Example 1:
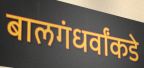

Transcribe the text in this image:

बालगंधर्वांकडे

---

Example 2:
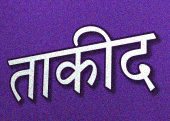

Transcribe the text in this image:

ताकीद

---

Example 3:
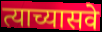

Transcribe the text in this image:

त्याच्यासवे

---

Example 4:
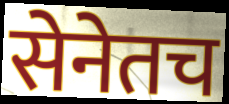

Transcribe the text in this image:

सेनेतच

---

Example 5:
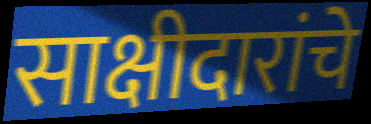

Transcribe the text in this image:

साक्षीदारांचे